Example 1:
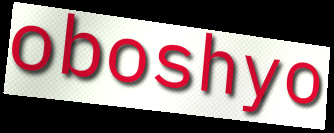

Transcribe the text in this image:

oboshyo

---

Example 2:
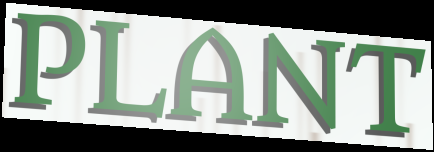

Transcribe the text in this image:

PLANT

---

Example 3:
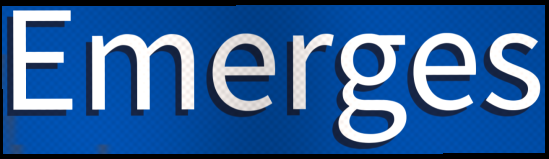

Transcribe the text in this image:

Emerges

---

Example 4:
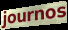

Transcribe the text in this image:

journos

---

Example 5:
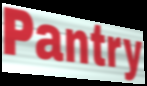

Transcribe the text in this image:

Pantry